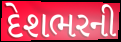
દેશભરની